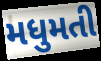
મધુમતી